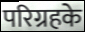
परिग्रहके